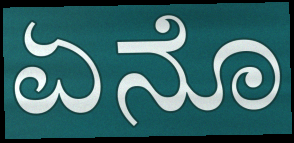
ಏನೊ